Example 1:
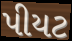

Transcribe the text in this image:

પીયટ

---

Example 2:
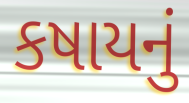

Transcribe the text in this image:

કષાયનું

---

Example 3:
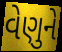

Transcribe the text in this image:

વેણુને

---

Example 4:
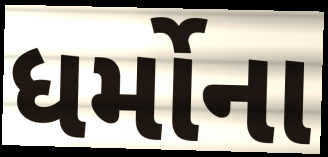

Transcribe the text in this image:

ધર્મોના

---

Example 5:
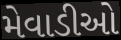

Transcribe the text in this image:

મેવાડીઓ